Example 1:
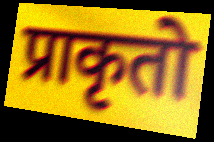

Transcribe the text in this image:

प्राकृतो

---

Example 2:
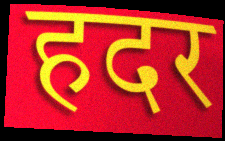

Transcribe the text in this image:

हदर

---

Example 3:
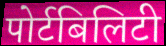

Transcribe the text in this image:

पोर्टबिलिटी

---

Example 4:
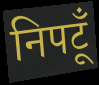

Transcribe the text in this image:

निपटूँ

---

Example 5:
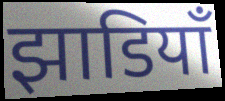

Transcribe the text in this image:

झाडियाँ